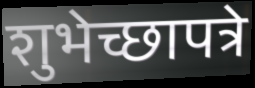
शुभेच्छापत्रे